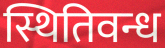
स्थितिवन्ध